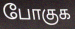
போகுக